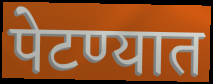
पेटण्यात